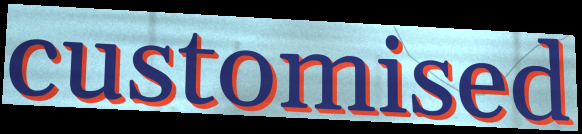
customised